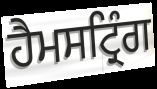
ਹੈਮਸਟ੍ਰਿੰਗ